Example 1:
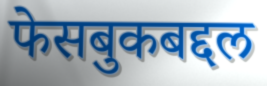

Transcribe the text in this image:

फेसबुकबद्दल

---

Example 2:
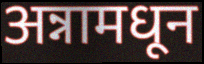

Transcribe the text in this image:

अन्नामधून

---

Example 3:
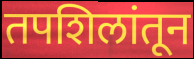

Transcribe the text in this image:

तपशिलांतून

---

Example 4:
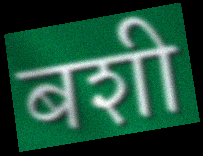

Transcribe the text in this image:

बशी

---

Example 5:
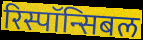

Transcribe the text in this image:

रिस्पॉन्सिबल